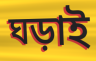
ঘড়াই